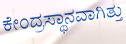
ಕೇಂದ್ರಸ್ಥಾನವಾಗಿತ್ತು